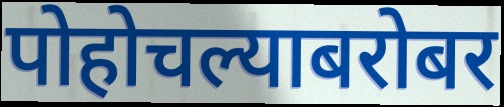
पोहोचल्याबरोबर